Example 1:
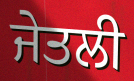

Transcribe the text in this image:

ਜੇਤਲੀ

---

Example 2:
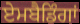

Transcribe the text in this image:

ਏਮਬੈਡਿੰਗਾਂ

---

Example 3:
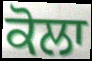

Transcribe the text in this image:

ਕੋਲਾ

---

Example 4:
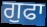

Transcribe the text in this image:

ਗੁਫਾ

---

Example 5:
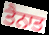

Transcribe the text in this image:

ਤੈਨਾਤ